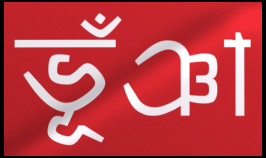
ভূঁঞা